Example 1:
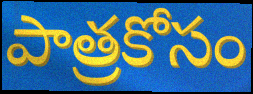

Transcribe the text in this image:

పాత్రకోసం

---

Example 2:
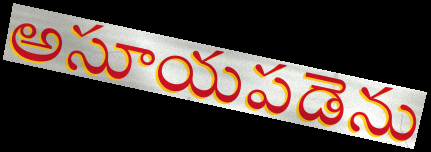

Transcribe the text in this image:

అసూయపడెను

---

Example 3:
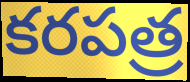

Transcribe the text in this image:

కరపత్ర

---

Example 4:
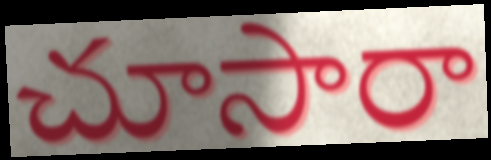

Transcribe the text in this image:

చూసారా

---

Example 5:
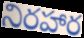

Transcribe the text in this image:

నిరహార